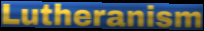
Lutheranism